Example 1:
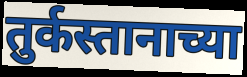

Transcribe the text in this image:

तुर्कस्तानाच्या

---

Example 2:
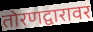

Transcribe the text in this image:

तोरणद्वारावर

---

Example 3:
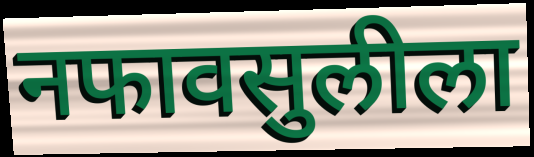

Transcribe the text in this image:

नफावसुलीला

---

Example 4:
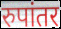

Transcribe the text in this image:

रुपांतर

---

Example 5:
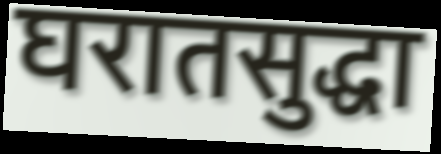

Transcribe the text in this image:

घरातसुद्धा